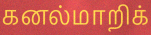
கனல்மாறிக்